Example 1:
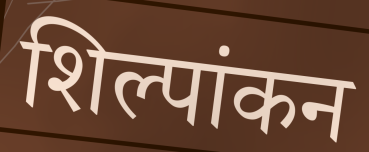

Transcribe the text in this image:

शिल्पांकन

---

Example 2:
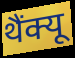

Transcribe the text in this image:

थैंक्यू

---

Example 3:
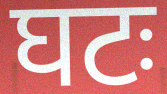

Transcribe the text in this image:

घटः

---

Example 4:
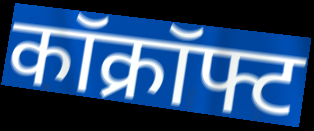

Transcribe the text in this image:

कॉक्रॉफ्ट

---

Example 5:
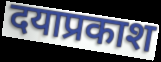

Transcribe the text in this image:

दयाप्रकाश